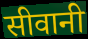
सीवानी